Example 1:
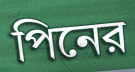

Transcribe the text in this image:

পিনের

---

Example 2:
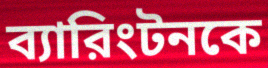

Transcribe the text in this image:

ব্যারিংটনকে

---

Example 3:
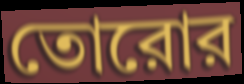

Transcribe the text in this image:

তোরোর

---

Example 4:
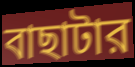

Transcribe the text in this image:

বাছাটার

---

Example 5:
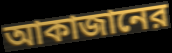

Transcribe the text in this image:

আকাজানের